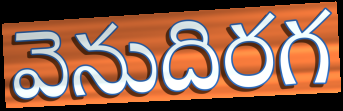
వెనుదిరగ